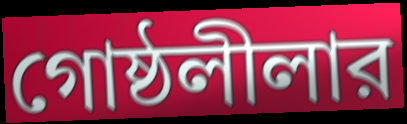
গোষ্ঠলীলার